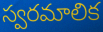
స్వరమాలిక